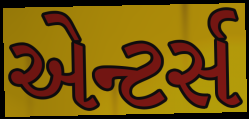
એન્ટર્સ